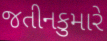
જતીનકુમારે